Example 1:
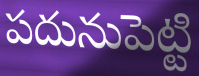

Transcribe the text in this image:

పదునుపెట్టి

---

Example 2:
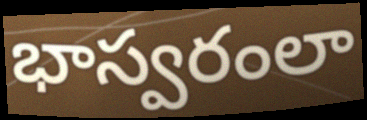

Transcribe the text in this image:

భాస్వరంలా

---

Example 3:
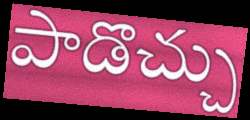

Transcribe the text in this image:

పాడొచ్చు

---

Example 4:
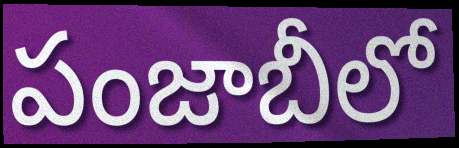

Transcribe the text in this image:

పంజాబీలో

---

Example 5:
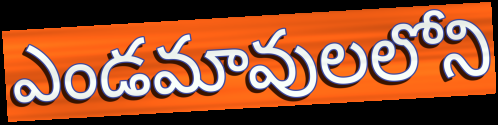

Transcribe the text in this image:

ఎండమావులలోని